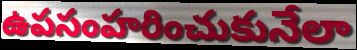
ఉపసంహరించుకునేలా